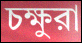
চক্ষুরা